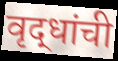
वृद्धांची